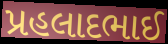
પ્રહલાદભાઈ